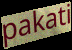
pakati